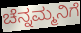
ಚೆನ್ನಮ್ಮನಿಗೆ